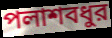
পলাশবধুর